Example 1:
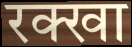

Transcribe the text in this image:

रक्‍खा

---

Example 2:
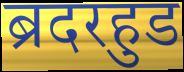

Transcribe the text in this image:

ब्रदरहुड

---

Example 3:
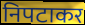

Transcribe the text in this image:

निपटाकर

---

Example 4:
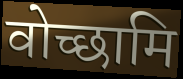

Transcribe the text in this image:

वोच्छामि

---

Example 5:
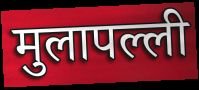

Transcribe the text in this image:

मुलापल्ली